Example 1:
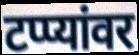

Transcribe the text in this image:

टप्प्यांवर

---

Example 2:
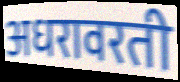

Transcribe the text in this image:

अधरावरती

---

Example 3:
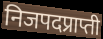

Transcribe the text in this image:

निजपदप्राप्ती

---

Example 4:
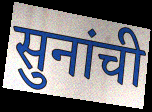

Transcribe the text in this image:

सुनांची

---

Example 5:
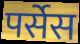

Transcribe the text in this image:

पर्सेस